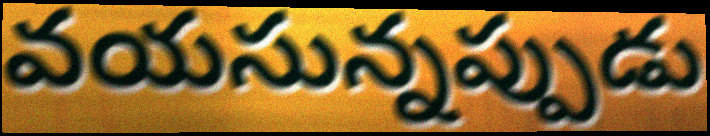
వయసున్నప్పుడు